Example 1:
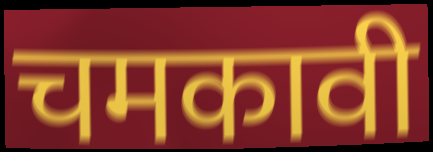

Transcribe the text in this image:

चमकावी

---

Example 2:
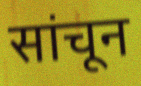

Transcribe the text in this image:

सांचून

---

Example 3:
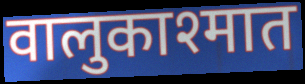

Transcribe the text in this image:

वालुकाश्मात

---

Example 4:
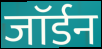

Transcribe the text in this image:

जॉर्डन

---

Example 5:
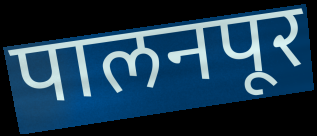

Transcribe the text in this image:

पालनपूर